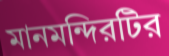
মানমন্দিরটির